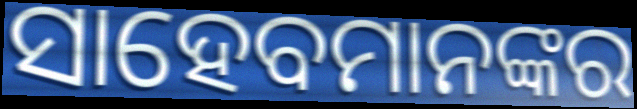
ସାହେବମାନଙ୍କର